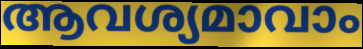
ആവശ്യമാവാം